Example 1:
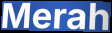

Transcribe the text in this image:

Merah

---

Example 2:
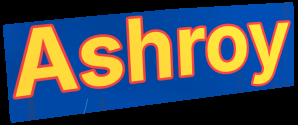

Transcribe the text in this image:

Ashroy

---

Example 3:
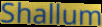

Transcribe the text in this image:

Shallum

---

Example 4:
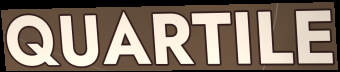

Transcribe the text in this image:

QUARTILE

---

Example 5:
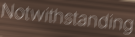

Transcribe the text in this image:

Notwithstanding